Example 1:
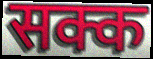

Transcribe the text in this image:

सक्क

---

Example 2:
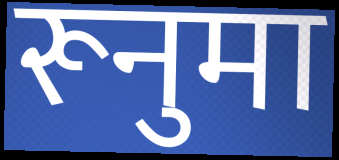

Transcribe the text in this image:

रूनुमा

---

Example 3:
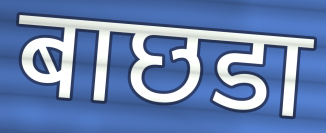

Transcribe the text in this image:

बाछडा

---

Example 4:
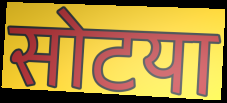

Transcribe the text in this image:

सोटया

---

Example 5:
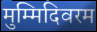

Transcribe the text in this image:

मुम्मिदिवरम